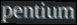
pentium